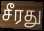
சீரது